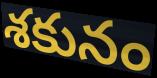
శకునం